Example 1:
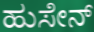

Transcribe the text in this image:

ಹುಸೇನ್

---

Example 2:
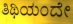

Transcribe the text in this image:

ತಿಥಿಯಂದೇ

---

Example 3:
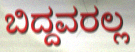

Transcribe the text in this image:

ಬಿದ್ದವರಲ್ಲ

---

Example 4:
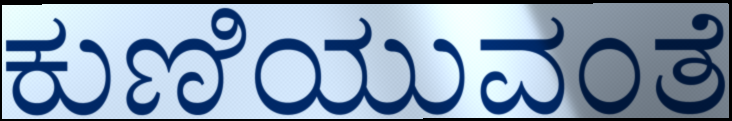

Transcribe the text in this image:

ಕುಣಿಯುವಂತೆ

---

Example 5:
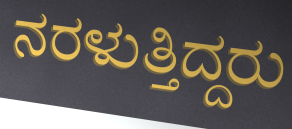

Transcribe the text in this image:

ನರಳುತ್ತಿದ್ದರು